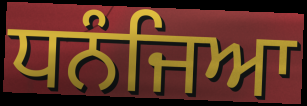
ਧਨੰਜਿਆ